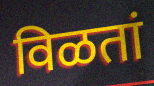
विळतां